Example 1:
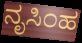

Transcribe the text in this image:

ನೃಸಿಂಹ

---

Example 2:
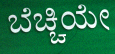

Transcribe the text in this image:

ಬೆಚ್ಚಿಯೇ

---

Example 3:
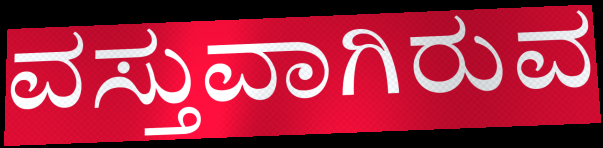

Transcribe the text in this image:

ವಸ್ತುವಾಗಿರುವ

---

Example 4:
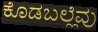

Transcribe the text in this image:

ಕೊಡಬಲ್ಲೆವು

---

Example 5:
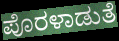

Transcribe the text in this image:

ಪೊರಳಾಡುತೆ